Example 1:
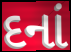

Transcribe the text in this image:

દનાં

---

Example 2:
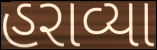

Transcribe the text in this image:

હરાવ્યા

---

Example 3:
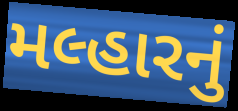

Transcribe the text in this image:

મલ્હારનું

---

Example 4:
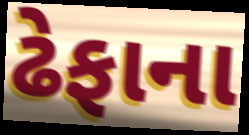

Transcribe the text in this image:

ઢેફાના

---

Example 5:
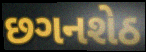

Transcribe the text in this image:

છગનશેઠ